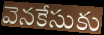
వెనకేసుకు